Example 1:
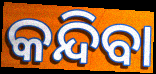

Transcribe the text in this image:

କନ୍ଦିବା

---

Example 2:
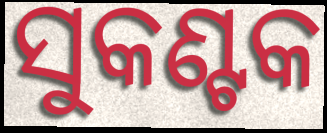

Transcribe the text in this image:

ସୁକଣ୍ଟକ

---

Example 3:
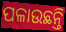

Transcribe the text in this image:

ପଳାଉଛନ୍ତି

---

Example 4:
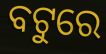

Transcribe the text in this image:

ବଟୁରେ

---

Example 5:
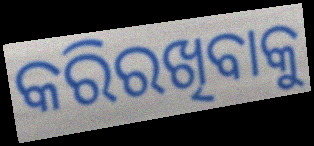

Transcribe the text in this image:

କରିରଖିବାକୁ